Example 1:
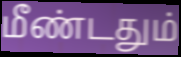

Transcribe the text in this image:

மீண்டதும்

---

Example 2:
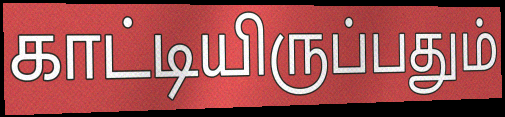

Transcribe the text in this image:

காட்டியிருப்பதும்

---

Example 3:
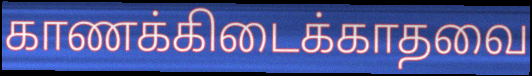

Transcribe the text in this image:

காணக்கிடைக்காதவை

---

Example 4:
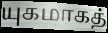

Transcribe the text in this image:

யுகமாகத்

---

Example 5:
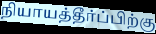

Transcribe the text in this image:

நியாயத்தீர்ப்பிற்கு